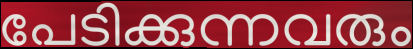
പേടിക്കുന്നവരും